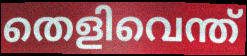
തെളിവെന്ത്